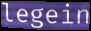
legein